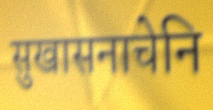
सुखासनाचेनि